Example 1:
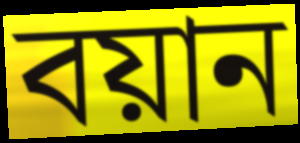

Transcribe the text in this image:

বয়ান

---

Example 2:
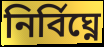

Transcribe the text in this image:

নির্বিঘ্নে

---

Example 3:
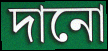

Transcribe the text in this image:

দানো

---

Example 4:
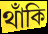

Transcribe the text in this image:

থাঁকি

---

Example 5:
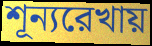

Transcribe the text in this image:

শূন্যরেখায়